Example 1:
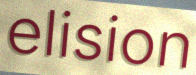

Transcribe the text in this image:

elision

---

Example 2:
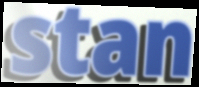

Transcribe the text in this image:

stan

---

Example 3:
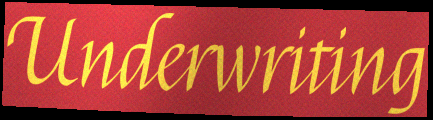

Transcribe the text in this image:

Underwriting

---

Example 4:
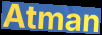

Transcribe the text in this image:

Atman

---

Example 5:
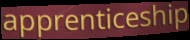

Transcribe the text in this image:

apprenticeship